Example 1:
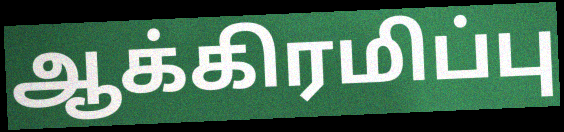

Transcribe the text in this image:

ஆக்கிரமிப்பு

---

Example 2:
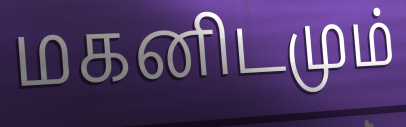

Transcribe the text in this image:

மகனிடமும்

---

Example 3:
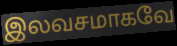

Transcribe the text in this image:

இலவசமாகவே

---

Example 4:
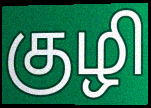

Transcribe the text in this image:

குழி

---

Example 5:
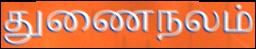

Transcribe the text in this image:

துணைநலம்